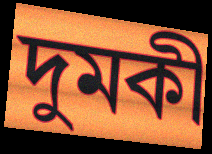
দুমকী